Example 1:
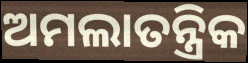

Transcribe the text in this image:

ଅମଲାତନ୍ତ୍ରିକ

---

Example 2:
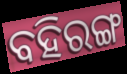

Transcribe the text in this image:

ବହିରଙ୍ଗ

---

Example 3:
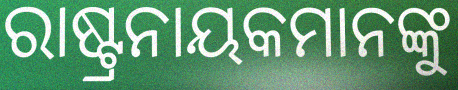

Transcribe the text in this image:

ରାଷ୍ଟ୍ରନାୟକମାନଙ୍କୁ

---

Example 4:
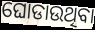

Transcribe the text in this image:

ଘୋଡାଉଥିବା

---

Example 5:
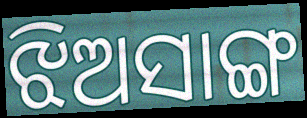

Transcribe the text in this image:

ଝିଅସାଙ୍ଗ